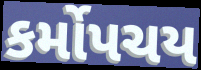
કર્મોપચય